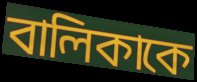
বালিকাকে